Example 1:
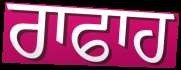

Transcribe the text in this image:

ਰਾਫਾਹ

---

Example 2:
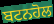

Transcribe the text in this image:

ਬਟਨਹੋਲ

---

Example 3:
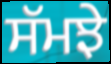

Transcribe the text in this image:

ਸੱਮਝੇ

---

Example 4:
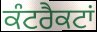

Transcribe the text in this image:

ਕੰਟਰੈਕਟਾਂ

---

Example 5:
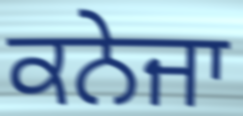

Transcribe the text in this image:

ਕਨੇਜਾ